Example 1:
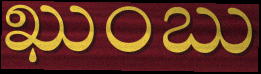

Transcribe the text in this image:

ఖుంబు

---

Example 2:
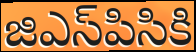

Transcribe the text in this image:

జిఎస్‌పిసికి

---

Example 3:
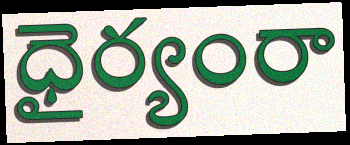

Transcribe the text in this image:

ధైర్యంరా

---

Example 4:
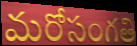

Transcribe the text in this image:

మరోసంగతి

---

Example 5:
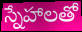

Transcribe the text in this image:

స్నేహాలతో